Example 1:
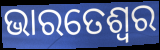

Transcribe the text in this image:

ଭାରତେଶ୍ୱର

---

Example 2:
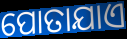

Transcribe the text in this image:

ପୋତାଯାଏ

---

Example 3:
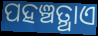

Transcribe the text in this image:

ପହଞ୍ଚତ୍ଥାଏ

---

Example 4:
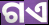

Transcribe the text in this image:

ଗଏ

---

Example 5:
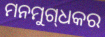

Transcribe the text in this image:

ମନମୁଗ୍‌ଧକର